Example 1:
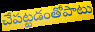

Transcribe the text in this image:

చేపట్టడంతోపాటు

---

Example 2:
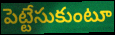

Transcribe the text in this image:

పెట్టేసుకుంటూ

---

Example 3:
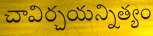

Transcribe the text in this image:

చావిర్చయన్నిత్యం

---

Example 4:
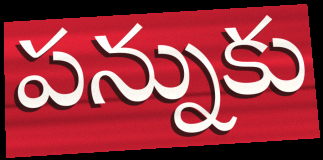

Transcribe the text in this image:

పన్నుకు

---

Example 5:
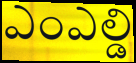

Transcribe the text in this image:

ఎంఎల్డి